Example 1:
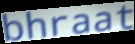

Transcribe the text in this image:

bhraat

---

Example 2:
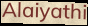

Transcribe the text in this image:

Alaiyathi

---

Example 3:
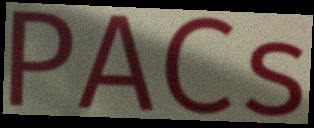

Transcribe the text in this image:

PACs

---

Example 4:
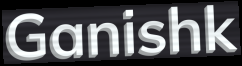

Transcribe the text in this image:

Ganishk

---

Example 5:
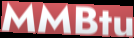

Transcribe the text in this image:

MMBtu